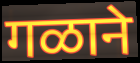
गळाने